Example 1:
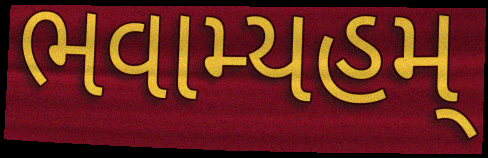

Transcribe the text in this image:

ભવામ્યહમ્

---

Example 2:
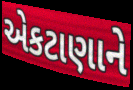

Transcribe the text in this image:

એકટાણાને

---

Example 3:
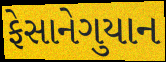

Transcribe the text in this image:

ફેસાનેગુયાન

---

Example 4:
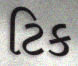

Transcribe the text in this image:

ટિક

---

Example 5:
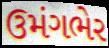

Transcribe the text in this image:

ઉમંગભેર